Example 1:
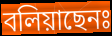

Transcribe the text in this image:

বলিয়াছেনঃ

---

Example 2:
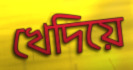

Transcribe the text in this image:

খেদিয়ে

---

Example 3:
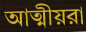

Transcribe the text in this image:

আত্মীয়রা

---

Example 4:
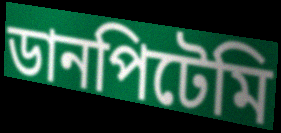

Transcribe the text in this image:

ডানপিটেমি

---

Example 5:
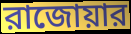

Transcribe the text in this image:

রাজোয়ার